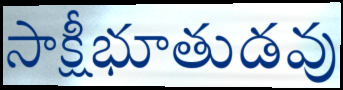
సాక్షీభూతుడవు